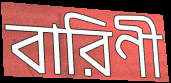
বারিণী